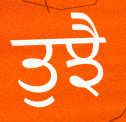
ਤੁਝੈ